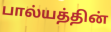
பால்யத்தின்